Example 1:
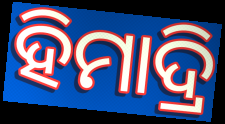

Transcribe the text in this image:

ହିମାଦ୍ରି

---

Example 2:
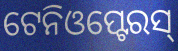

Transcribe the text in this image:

ଟେନିଓପ୍ଟେରସ୍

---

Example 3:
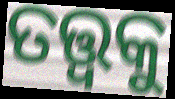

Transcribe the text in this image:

ତତ୍ତ୍ଵକୁ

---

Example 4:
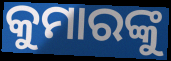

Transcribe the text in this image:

କୁମାରଙ୍କୁ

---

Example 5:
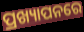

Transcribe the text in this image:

ପ୍ରଖ୍ୟାପନରେ